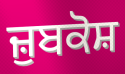
ਜ਼ੁਬਕੋਸ਼